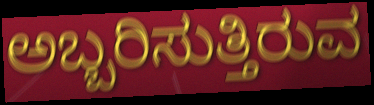
ಅಬ್ಬರಿಸುತ್ತಿರುವ